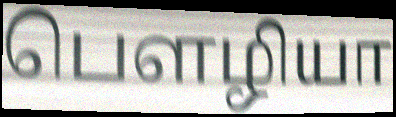
பௌழியா